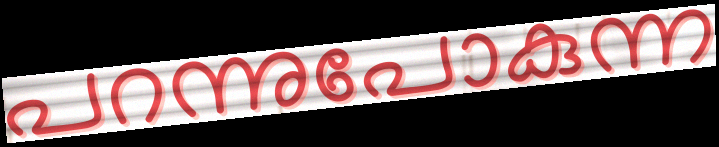
പറന്നുപോകുന്ന